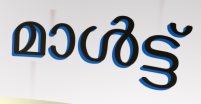
മാൾട്ട്